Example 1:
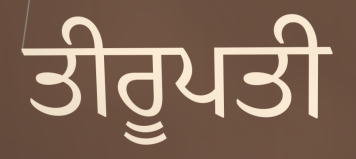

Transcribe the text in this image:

ਤੀਰੂਪਤੀ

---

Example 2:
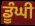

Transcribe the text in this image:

ਡੂੰਘੀ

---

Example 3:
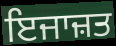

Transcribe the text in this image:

ਇਜਾਜ਼ਤ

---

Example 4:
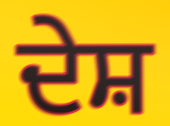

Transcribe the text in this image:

ਦੇਸ਼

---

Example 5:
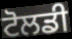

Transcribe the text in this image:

ਟੋਲਡੀ